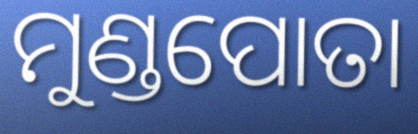
ମୁଣ୍ଡପୋତା